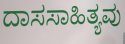
ದಾಸಸಾಹಿತ್ಯವು